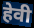
हेवी